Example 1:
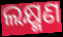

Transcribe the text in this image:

ଲକ୍ଷ୍ମଣ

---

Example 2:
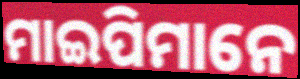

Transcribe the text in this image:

ମାଇପିମାନେ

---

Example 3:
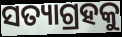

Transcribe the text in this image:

ସତ୍ୟାଗ୍ରହକୁ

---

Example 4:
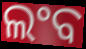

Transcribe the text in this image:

ଲଂବ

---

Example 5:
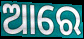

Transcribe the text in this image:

ଆରେ